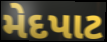
મેદપાટ